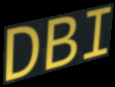
DBI